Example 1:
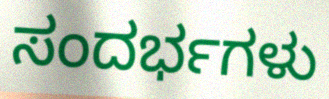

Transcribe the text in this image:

ಸಂದರ್ಭಗಳು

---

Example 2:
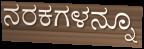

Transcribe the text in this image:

ನರಕಗಳನ್ನೂ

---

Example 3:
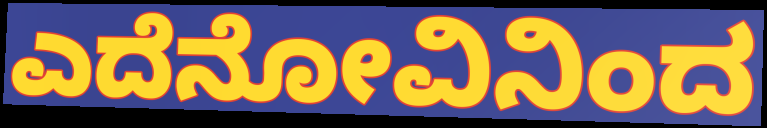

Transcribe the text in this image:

ಎದೆನೋವಿನಿಂದ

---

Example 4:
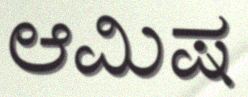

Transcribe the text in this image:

ಆಮಿಷ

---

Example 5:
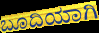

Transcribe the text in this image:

ಬೂದಿಯಾಗಿ